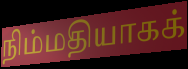
நிம்மதியாகக்